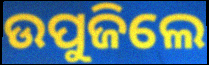
ଉପୁଜିଲେ